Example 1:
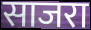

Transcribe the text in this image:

साजरा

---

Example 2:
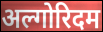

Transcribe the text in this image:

अल्गोरिदम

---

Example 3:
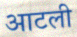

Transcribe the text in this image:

आटली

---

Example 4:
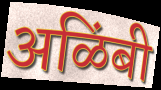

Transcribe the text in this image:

अळिंबी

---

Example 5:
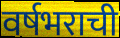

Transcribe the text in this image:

वर्षभराची